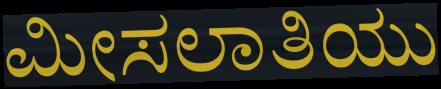
ಮೀಸಲಾತಿಯು